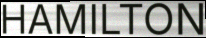
HAMILTON